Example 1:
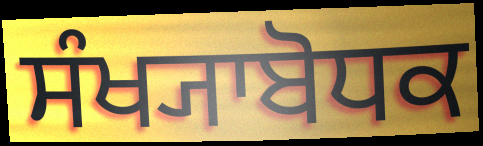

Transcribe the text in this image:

ਸੰਖ੍ਯਾਬੋਧਕ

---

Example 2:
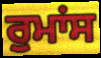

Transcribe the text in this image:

ਰੁਮਾਂਸ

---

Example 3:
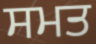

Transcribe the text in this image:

ਸਮਤ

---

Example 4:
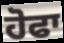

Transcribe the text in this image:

ਹੋਫਾ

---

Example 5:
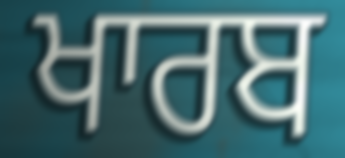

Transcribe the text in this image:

ਖਾਰਬ